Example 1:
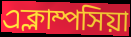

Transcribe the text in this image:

এক্লাম্পসিয়া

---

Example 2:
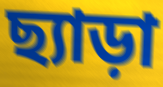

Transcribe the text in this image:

ছ্যাড়া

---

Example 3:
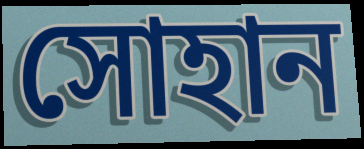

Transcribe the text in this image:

সোহান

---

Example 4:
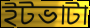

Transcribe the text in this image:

ইটভাটা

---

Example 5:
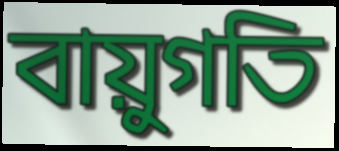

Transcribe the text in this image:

বায়ুগতি